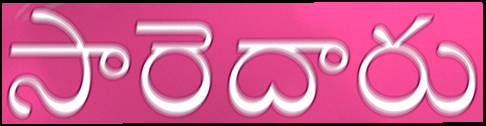
సారెదారు